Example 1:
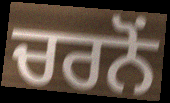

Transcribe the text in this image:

ਚਰਨੋਂ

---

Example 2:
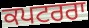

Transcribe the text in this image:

ਕਪਟਰਰਾ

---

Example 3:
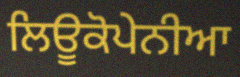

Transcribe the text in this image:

ਲਿਊਕੋਪੇਨੀਆ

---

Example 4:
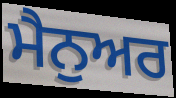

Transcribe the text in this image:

ਮੈਨੁਅਰ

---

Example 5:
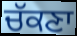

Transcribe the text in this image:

ਚੱਕਣਾ